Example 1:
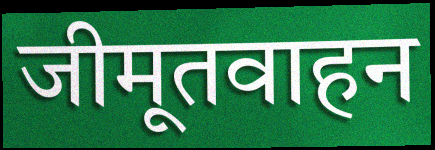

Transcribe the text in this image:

जीमूतवाहन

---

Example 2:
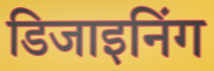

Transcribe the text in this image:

डिजाइनिंग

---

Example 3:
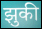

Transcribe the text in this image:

झुकी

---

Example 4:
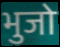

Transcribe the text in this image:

भुजो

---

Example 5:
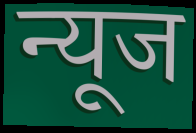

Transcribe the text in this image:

न्यूज